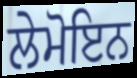
ਲੇਮੋਇਨ